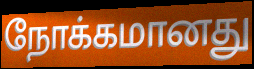
நோக்கமானது